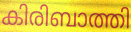
കിരിബാത്തി